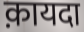
क़ायदा